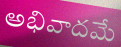
అభివాదమే